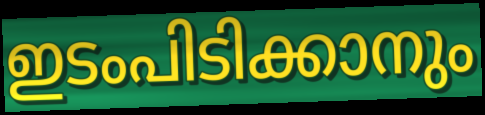
ഇടംപിടിക്കാനും